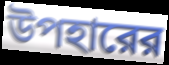
উপহারের